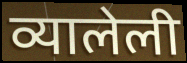
व्यालेली